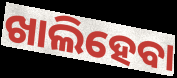
ଖାଲିହେବା